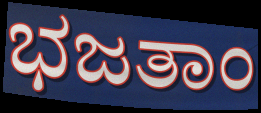
ಭಜತಾಂ